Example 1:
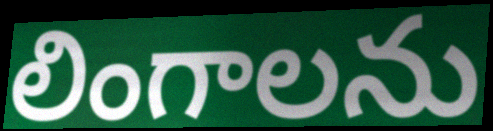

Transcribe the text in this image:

లింగాలను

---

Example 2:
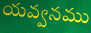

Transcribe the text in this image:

యవ్వనము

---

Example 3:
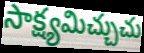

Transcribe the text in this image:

సాక్ష్యమిచ్చుచు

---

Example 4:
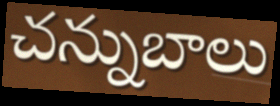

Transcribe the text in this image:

చన్నుబాలు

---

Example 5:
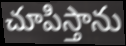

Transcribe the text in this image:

చూపిస్తాను